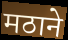
मठाने